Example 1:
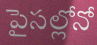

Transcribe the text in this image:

పైసల్లోనో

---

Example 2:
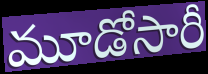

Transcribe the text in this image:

మూడోసారీ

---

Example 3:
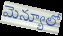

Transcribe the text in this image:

మెన్యూలో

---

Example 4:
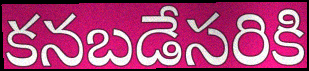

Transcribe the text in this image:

కనబడేసరికి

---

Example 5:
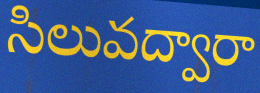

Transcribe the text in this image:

సిలువద్వారా